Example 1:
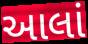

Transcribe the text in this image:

આલાં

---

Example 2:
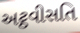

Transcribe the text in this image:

અટ્ઠવીસતિ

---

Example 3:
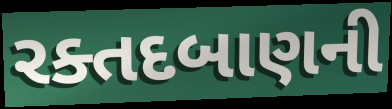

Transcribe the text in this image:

રક્તદબાણની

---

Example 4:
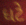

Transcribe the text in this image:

ધટે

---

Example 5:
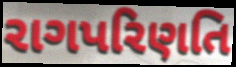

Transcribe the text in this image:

રાગપરિણતિ